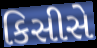
કિસીસે